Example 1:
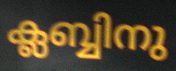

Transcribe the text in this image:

ക്ലബ്ബിനു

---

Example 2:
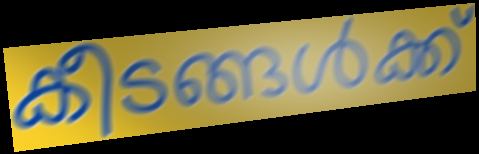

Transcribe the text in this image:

കീടങ്ങൾക്ക്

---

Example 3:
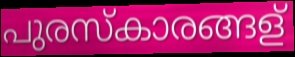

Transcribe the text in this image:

പുരസ്കാരങ്ങള്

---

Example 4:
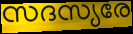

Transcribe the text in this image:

സദസ്യരേ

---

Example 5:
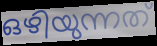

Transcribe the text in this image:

ഒഴിയുന്നത്